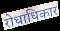
रोधाधिकार